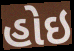
હોઇ